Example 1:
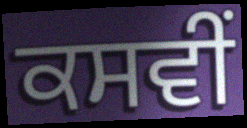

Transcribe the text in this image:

ਕਸਵੀਂ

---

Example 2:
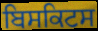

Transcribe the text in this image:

ਬਿਸਕਿਟਸ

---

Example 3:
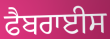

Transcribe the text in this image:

ਫੈਬਰਾਈਸ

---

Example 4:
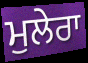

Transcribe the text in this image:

ਮੁਲੇਰਾ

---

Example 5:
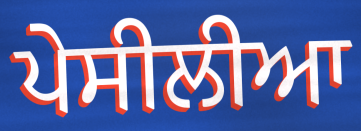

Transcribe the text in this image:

ਪੇਸੀਲੀਆ